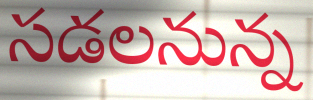
సడలనున్న